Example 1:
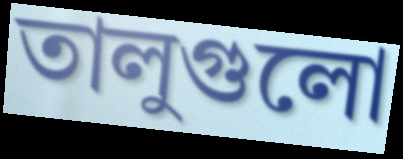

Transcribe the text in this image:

তালুগুলো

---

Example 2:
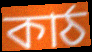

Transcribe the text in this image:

কাঠ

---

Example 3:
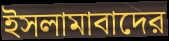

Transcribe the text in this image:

ইসলামাবাদের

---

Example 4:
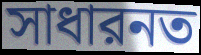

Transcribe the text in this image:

সাধারনত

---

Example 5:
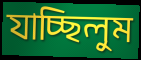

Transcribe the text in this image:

যাচ্ছিলুম